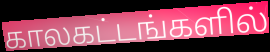
காலகட்டங்களில்